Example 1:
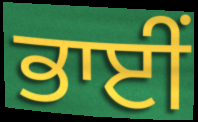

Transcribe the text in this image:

ਭਾਈੰ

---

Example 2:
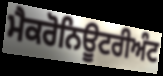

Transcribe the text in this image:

ਮੈਕਰੋਨਿਊਟਰੀਅੰਟ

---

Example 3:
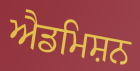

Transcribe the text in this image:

ਐਡਮਿਸ਼ਨ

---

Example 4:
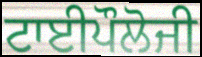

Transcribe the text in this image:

ਟਾਈਪੌਲੋਜੀ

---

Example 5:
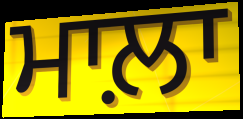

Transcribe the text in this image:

ਮਾਲ਼ਾ